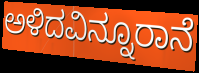
ಅಳಿದವಿನ್ನೂರಾನೆ